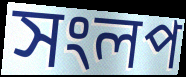
সংলপ